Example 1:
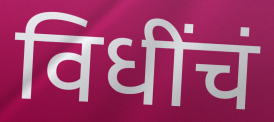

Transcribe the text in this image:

विधींचं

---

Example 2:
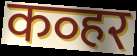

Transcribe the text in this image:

कव्हर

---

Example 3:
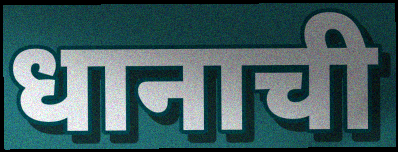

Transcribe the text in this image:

धानाची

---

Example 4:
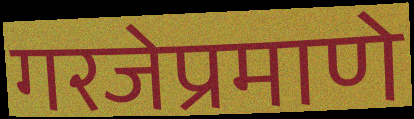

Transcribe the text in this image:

गरजेप्रमाणे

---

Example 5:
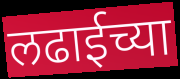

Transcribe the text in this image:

लढाईच्या